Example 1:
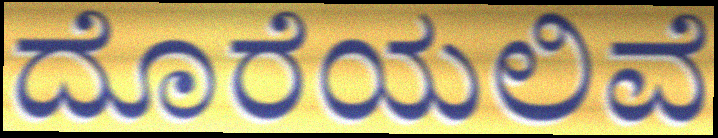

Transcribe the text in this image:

ದೊರೆಯಲಿವೆ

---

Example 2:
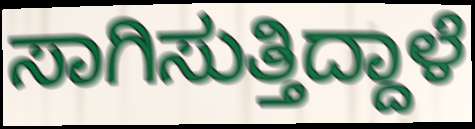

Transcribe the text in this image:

ಸಾಗಿಸುತ್ತಿದ್ದಾಳೆ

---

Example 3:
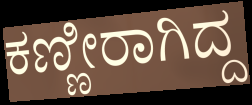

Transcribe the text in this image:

ಕಣ್ಣೀರಾಗಿದ್ದ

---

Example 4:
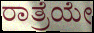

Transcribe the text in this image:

ರಾತ್ರೆಯೇ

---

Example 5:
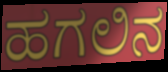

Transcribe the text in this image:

ಹಗಲಿನ